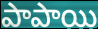
పాపాయి